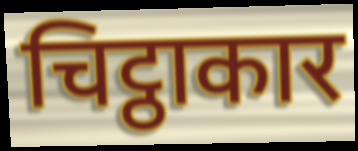
चिट्ठाकार